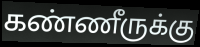
கண்ணீருக்கு